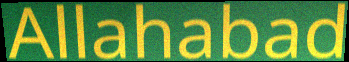
Allahabad